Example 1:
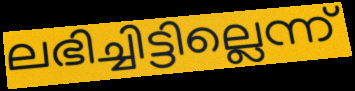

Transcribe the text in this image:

ലഭിച്ചിട്ടില്ലെന്ന്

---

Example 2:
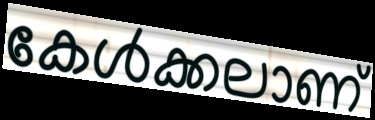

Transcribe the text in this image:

കേൾക്കലാണ്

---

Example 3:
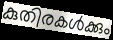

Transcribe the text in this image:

കുതിരകൾക്കും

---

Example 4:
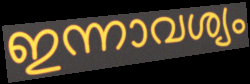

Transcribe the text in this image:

ഇന്നാവശ്യം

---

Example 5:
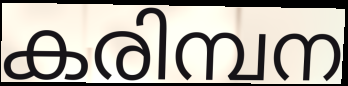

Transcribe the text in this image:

കരിമ്പന